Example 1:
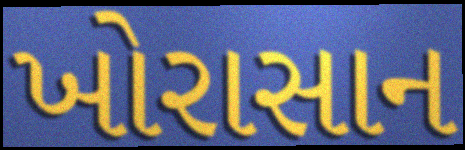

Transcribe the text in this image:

ખોરાસાન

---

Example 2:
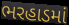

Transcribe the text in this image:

ભરહાડમાં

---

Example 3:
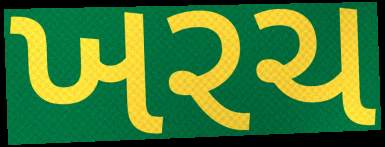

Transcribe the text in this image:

ખરચ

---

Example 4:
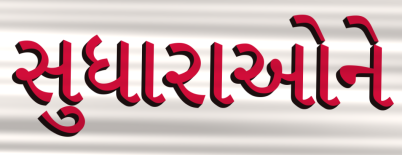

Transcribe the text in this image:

સુધારાઓને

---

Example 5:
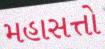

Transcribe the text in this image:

મહાસત્તો